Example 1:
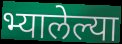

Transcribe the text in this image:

भ्यालेल्या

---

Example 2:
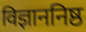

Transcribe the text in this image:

विज्ञाननिष्ठ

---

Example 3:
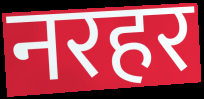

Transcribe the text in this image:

नरहर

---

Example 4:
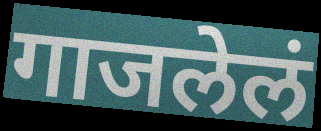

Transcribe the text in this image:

गाजलेलं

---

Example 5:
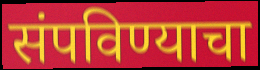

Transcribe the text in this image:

संपविण्याचा